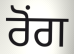
ਰੋਂਗ